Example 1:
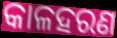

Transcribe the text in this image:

କାଳହରଣ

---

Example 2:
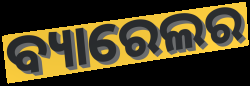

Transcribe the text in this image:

ବ୍ୟାରେଲର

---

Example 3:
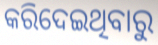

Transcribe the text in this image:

କରିଦେଇଥିବାରୁ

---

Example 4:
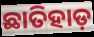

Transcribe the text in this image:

ଛାତିହାଡ଼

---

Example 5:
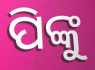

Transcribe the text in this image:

ପିଙ୍କୁ